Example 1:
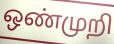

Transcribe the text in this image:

ஒண்முறி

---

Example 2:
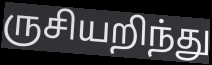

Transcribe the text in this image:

ருசியறிந்து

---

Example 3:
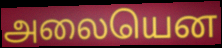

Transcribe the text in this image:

அலையென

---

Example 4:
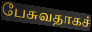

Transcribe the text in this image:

பேசுவதாகச்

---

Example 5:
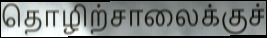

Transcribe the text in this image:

தொழிற்சாலைக்குச்